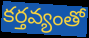
కర్తవ్యంతో